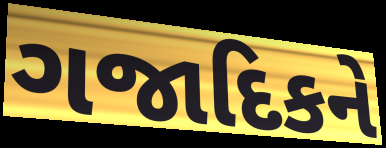
ગજાદિકને